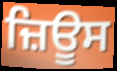
ਜ਼ਿਊਸ